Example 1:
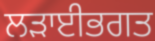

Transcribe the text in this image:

ਲੜਾਈਭਗਤ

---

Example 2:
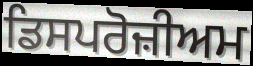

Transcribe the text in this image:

ਡਿਸਪਰੋਜ਼ੀਅਮ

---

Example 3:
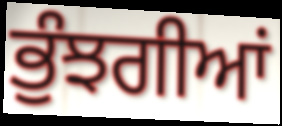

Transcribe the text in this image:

ਭੁੰਝਗੀਆਂ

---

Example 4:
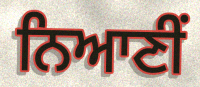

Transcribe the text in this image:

ਨਿਆਣੀਂ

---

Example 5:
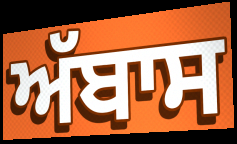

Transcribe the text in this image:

ਅੱਬਾਸ